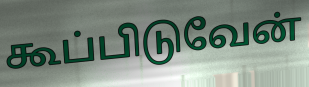
கூப்பிடுவேன்